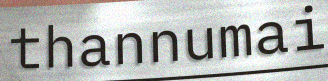
thannumai